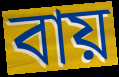
বায়